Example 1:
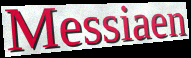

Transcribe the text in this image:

Messiaen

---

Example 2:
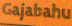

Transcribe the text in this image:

Gajabahu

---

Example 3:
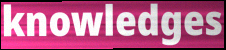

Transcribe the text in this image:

knowledges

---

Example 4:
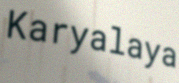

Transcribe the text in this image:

Karyalaya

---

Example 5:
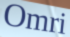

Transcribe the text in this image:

Omri